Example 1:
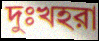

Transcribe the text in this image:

দুঃখহরা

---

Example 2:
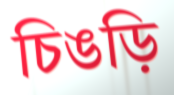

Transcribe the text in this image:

চিঙড়ি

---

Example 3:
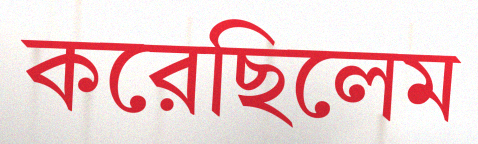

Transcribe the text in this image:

করেছিলেম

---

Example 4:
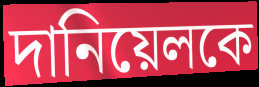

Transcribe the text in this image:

দানিয়েলকে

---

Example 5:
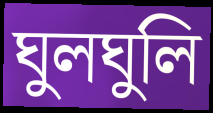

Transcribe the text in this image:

ঘুলঘুলি